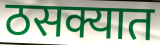
ठसक्यात